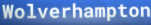
Wolverhampton